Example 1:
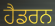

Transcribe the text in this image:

ਹੈਡਰਨ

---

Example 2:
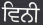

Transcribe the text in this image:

ਵਿਨੀ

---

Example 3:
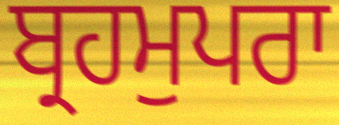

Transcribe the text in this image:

ਬ੍ਰਹਮੁਪਰਾ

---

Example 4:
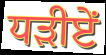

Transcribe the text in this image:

ਧੜੀਏਂ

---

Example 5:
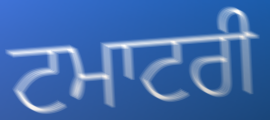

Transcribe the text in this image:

ਟਮਾਟਰੀ